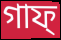
গাফ্